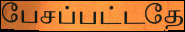
பேசப்பட்டதே